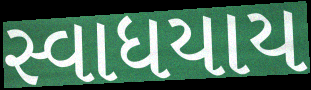
સ્વાધયાય